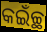
କଇଁଚ୍ଛ